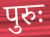
पुरुः